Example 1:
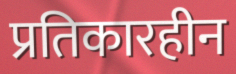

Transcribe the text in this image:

प्रतिकारहीन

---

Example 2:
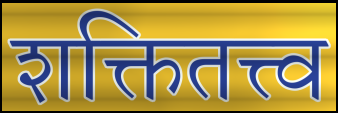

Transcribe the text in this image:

शक्तितत्त्व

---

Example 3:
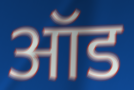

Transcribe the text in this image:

ऑड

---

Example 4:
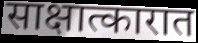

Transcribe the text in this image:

साक्षात्कारात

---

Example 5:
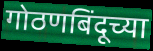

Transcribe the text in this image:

गोठणबिंदूच्या